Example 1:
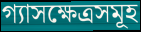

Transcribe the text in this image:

গ্যাসক্ষেত্রসমূহ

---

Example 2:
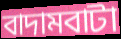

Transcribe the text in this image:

বাদামবাটা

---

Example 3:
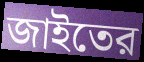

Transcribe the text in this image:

জাইতের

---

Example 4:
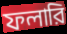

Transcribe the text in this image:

ফলারি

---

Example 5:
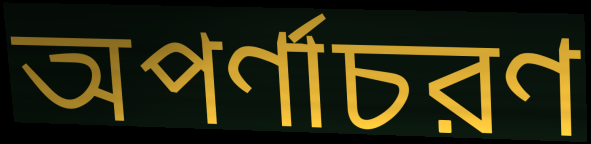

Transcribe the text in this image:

অপর্ণাচরণ